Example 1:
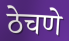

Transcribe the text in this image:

ठेचणे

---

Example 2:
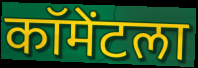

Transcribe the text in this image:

कॉमेंटला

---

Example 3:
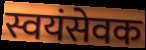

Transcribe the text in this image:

स्वयंसेवक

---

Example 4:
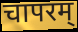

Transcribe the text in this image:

चापरम्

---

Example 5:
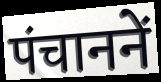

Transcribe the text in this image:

पंचाननें